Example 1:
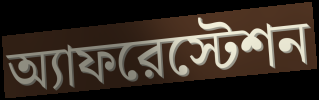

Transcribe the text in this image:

অ্যাফরেস্টেশন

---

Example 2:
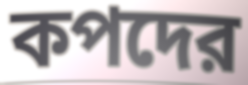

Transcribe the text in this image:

কপদের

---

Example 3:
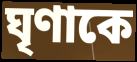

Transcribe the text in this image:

ঘৃণাকে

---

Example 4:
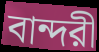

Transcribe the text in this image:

বান্দরী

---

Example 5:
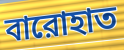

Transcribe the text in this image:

বারোহাত